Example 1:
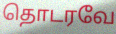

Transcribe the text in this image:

தொடரவே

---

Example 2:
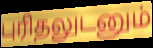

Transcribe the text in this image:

புரிதலுடனும்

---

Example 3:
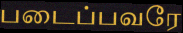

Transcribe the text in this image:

படைப்பவரே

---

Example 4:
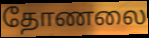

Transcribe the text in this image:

தோணலை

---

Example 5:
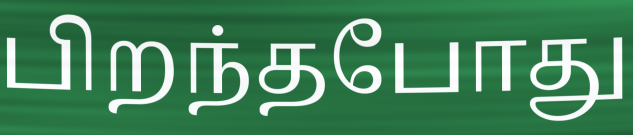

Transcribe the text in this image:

பிறந்தபோது